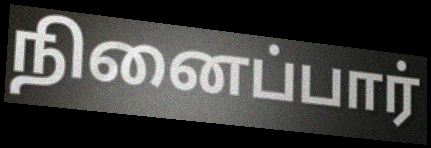
நினைப்பார்